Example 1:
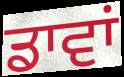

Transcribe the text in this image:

ਡਾਵਾਂ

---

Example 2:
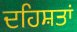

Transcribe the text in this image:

ਦਹਿਸ਼ਤਾਂ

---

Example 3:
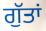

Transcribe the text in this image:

ਗੁੱਤਾਂ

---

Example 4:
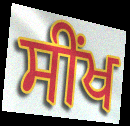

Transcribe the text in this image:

ਸੀਂਖ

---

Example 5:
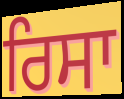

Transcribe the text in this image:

ਰਿਸਾ